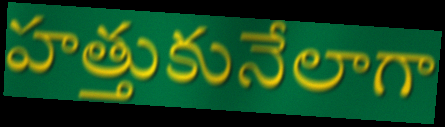
హత్తుకునేలాగా